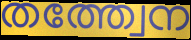
തത്ത്വേന